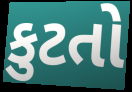
કુટતો